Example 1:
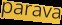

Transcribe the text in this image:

parava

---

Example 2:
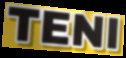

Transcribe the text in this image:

TENI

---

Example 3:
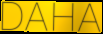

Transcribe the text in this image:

DAHA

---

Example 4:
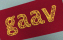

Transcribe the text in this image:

gaav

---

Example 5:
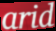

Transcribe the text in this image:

arid